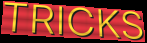
TRICKS